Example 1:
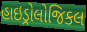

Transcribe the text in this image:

હાઇડ્રોલોજિકલ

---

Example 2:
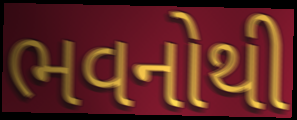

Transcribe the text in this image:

ભવનોથી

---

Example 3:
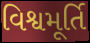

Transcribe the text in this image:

વિશ્વમૂર્તિ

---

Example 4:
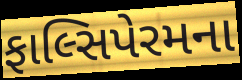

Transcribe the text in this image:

ફાલ્સિપેરમના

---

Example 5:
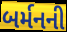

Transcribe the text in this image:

બર્મનની